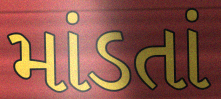
માંડતાં